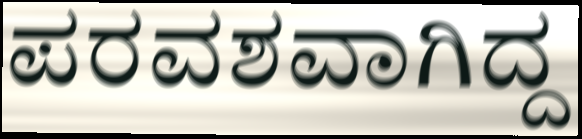
ಪರವಶವಾಗಿದ್ದ